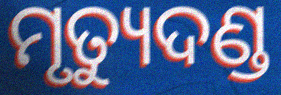
ମୃତ୍ୟୁଦଣ୍ଡ